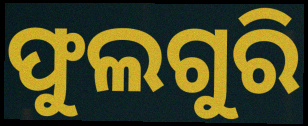
ଫୁଲଗୁରି